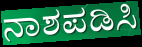
ನಾಶಪಡಿಸಿ